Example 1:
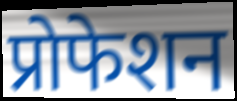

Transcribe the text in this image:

प्रोफेशन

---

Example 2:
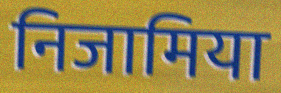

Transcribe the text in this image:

निजामिया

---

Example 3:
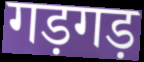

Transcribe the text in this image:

गड़गड़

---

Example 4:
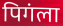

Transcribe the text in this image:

पिगंला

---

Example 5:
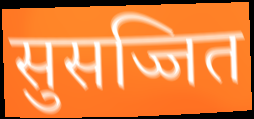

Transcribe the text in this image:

सुसज्जित